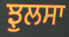
ਝੁਲਸਾ